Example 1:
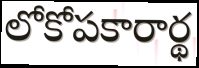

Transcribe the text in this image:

లోకోపకారార్థ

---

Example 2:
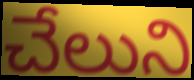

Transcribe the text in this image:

చేలుని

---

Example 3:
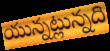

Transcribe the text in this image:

యున్నట్లున్నది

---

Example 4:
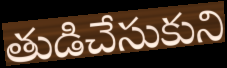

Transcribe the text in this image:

తుడిచేసుకుని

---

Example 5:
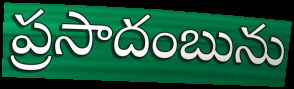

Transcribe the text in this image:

ప్రసాదంబును